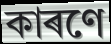
কাৰণে